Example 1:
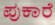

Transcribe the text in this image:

ಪುಕಾರೆ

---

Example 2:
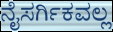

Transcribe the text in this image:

ನೈಸರ್ಗಿಕವಲ್ಲ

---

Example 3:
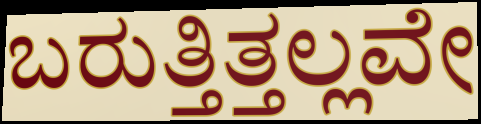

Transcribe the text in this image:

ಬರುತ್ತಿತ್ತಲ್ಲವೇ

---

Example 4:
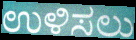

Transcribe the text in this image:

ಉಳಿಸಲು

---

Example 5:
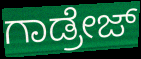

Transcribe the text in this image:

ಗಾಡ್ರೇಜ್